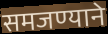
समजण्याने